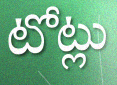
టోట్లు